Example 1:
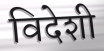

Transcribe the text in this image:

विदेशी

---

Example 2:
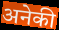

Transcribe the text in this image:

अनेकी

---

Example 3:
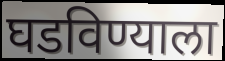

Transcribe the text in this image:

घडविण्याला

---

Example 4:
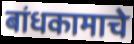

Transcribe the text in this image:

बांधकामाचे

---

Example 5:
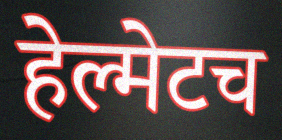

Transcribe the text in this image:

हेल्मेटच